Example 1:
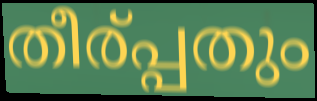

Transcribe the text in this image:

തീര്പ്പതും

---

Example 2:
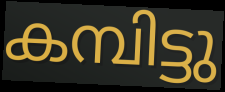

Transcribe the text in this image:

കമ്പിട്ടു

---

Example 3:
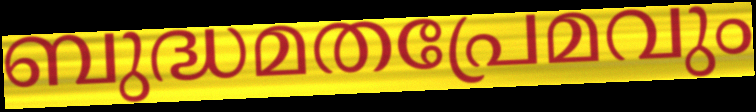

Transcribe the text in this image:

ബുദ്ധമതപ്രേമവും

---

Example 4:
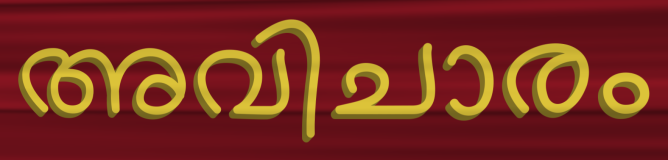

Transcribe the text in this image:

അവിചാരം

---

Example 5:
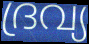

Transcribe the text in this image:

ദ്രവ്യ